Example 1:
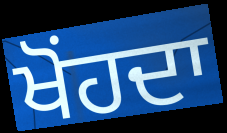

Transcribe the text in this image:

ਖੋਂਹਦਾ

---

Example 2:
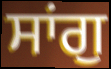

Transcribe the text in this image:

ਸਾਂਗੁ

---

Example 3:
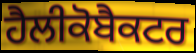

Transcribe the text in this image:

ਹੈਲੀਕੋਬੈਕਟਰ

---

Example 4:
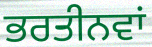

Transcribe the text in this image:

ਭਰਤੀਨਵਾਂ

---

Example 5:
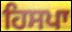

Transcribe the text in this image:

ਹਿਸਪਾ